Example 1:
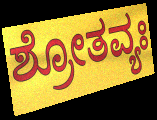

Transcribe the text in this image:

ಶ್ರೋತವ್ಯಃ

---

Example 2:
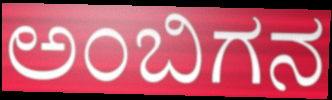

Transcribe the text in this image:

ಅಂಬಿಗನ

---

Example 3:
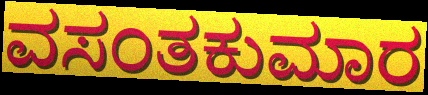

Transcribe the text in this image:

ವಸಂತಕುಮಾರ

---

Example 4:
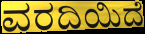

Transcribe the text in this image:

ವರದಿಯಿದೆ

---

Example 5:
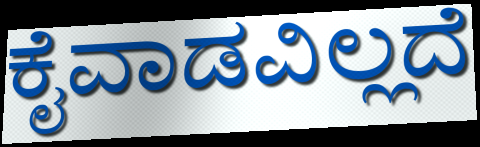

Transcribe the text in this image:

ಕೈವಾಡವಿಲ್ಲದೆ